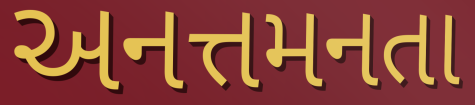
અનત્તમનતા